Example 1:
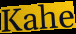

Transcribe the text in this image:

Kahe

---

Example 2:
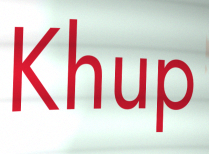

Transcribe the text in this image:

Khup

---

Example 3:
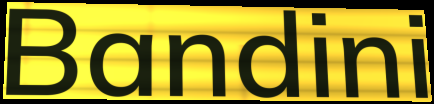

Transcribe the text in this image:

Bandini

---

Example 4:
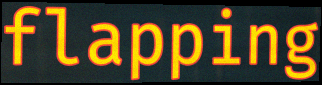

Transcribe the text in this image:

flapping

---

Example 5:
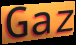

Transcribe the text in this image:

Gaz